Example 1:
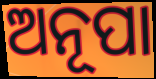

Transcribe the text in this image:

ଅନୂପା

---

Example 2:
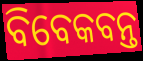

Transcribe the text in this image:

ବିବେକବନ୍ତ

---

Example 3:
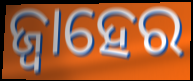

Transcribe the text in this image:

ଜ୍ୱାହେର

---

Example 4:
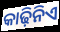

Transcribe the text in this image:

କାଢ଼ିନିଏ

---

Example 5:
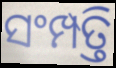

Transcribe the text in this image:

ସଂମ୍ପତ୍ତି